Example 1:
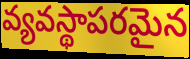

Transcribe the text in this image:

వ్యవస్థాపరమైన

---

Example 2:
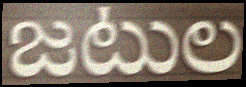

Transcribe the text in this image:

జటుల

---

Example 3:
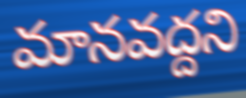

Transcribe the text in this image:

మానవద్దని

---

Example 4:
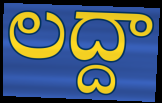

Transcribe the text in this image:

లద్దా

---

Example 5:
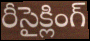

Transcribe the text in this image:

రీసైక్లింగ్